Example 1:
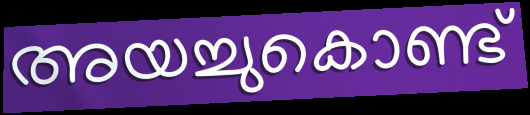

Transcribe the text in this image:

അയച്ചുകൊണ്ട്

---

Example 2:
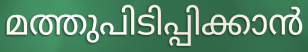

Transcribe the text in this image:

മത്തുപിടിപ്പിക്കാൻ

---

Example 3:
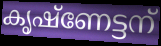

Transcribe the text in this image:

കൃഷ്ണേട്ടന്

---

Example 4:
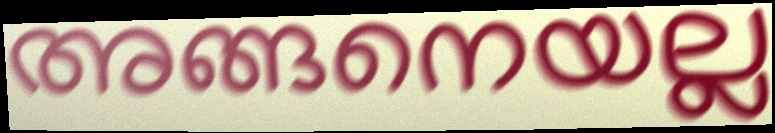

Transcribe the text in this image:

അങ്ങനെയല്ല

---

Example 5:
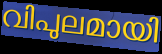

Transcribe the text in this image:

വിപുലമായി